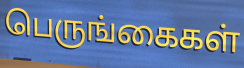
பெருங்கைகள்